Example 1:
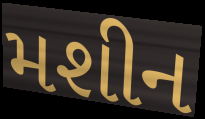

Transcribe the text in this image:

મશીન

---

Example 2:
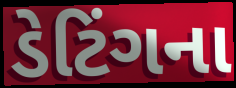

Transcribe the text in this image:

ડેટિંગના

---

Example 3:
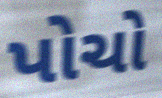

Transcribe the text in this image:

પોચો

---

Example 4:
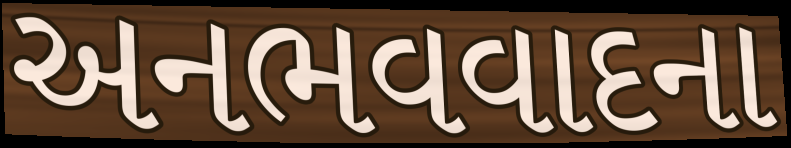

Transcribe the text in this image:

અનભવવાદના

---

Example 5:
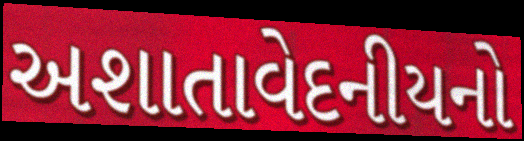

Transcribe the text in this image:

અશાતાવેદનીયનો